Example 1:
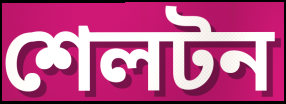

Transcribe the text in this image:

শেলটন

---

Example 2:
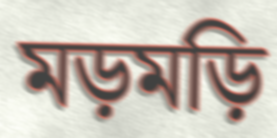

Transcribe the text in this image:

মড়মড়ি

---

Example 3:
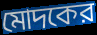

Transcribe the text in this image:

মোদকের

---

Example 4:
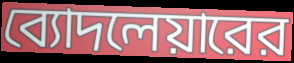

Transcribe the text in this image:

ব্যোদলেয়ারের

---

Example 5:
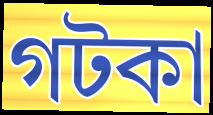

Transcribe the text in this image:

গটকা